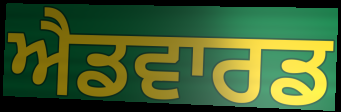
ਐਡਵਾਰਡ